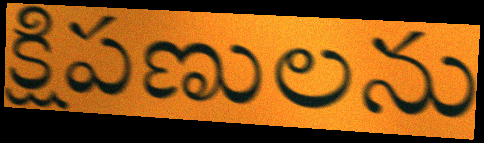
క్షిపణులను